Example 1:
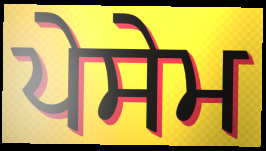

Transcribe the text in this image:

ਪੇਸੇਮ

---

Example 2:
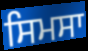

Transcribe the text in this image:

ਸਿਮਸਾ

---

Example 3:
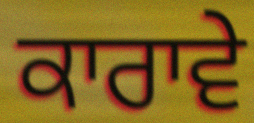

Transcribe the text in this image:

ਕਾਰਾਵੇ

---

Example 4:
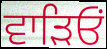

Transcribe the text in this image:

ਵਾੜਿਓਂ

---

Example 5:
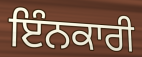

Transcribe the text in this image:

ਇੰਨਕਾਰੀ